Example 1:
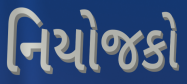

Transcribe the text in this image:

નિયોજકો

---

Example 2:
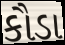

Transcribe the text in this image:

કૌડા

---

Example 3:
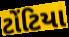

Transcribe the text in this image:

ટોંટિયા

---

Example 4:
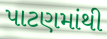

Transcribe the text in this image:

પાટણમાંથી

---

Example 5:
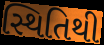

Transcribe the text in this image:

સ્થિતિથી